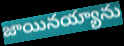
జాయినయ్యాను